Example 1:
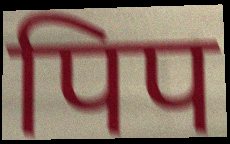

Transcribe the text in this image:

पिप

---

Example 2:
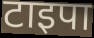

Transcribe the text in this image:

टाइपा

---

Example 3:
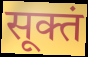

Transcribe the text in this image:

सूक्तं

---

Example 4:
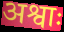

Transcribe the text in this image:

अश्वाः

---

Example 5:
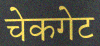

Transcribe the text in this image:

चेकगेट